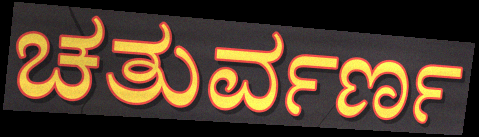
ಚತುರ್ವರ್ಣ